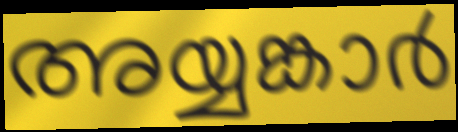
അയ്യങ്കാർ